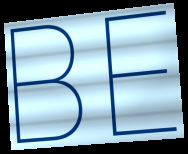
BE